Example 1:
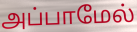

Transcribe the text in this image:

அப்பாமேல்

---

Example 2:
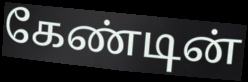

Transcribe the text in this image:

கேண்டின்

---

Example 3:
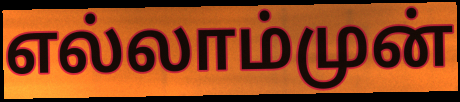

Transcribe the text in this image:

எல்லாம்முன்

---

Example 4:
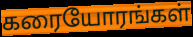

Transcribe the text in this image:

கரையோரங்கள்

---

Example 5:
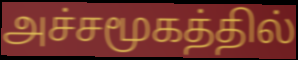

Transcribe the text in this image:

அச்சமூகத்தில்